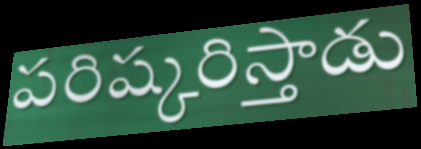
పరిష్కరిస్తాడు